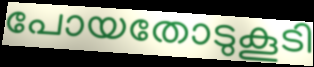
പോയതോടുകൂടി